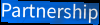
Partnership